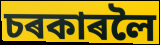
চৰকাৰলৈ